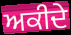
ਅਕੀਦੇ